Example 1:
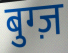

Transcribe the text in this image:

बुग्ज़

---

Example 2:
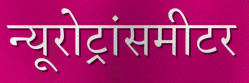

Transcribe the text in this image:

न्यूरोट्रांसमीटर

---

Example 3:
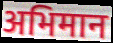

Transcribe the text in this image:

अभिमान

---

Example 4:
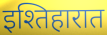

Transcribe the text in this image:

इश्तिहारात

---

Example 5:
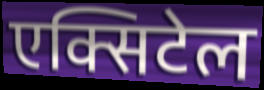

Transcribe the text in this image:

एक्सिटेल